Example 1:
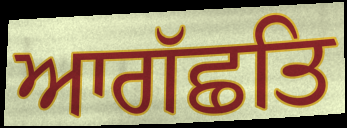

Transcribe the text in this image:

ਆਗੱਛਤਿ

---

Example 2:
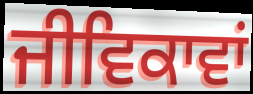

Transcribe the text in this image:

ਜੀਵਿਕਾਵਾਂ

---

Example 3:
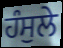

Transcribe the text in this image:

ਹੰਸੁਲੇ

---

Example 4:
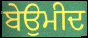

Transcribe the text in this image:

ਬੇਉਮੀਦ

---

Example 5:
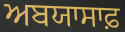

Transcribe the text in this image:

ਅਬਯਾਸਾਫ਼